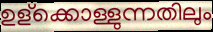
ഉള്ക്കൊള്ളുന്നതിലും